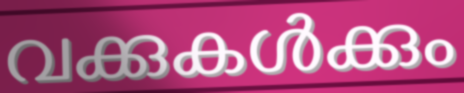
വക്കുകൾക്കും